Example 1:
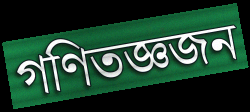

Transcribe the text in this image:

গণিতজ্ঞজন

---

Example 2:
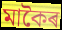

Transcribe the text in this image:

মাকৈৰ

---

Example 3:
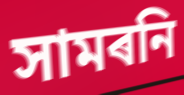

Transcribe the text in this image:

সামৰনি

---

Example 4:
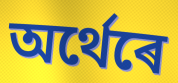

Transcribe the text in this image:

অৰ্থেৰে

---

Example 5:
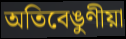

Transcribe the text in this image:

অতিবেঙুণীয়া